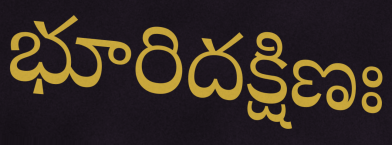
భూరిదక్షిణః